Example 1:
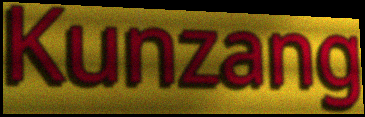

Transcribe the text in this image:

Kunzang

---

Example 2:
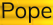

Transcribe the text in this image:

Pope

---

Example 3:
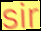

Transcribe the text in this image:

sir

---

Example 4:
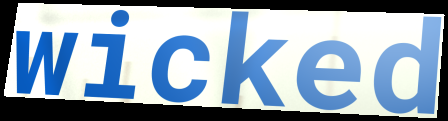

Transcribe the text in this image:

wicked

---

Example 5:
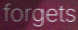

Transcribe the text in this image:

forgets